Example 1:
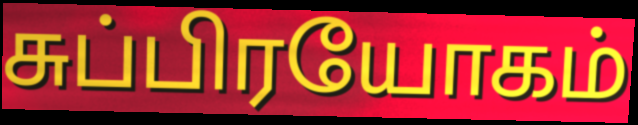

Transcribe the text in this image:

சுப்பிரயோகம்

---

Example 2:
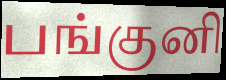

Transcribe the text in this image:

பங்குனி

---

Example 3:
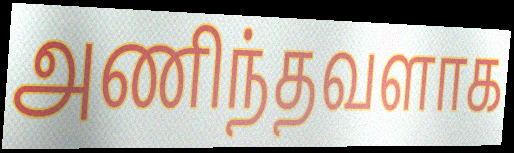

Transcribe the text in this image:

அணிந்தவளாக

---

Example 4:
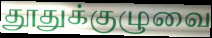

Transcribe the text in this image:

தூதுக்குழுவை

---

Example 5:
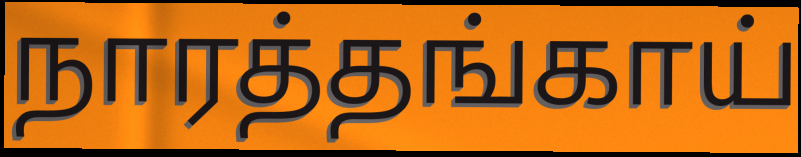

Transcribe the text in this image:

நாரத்தங்காய்